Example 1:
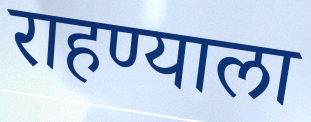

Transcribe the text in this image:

राहण्याला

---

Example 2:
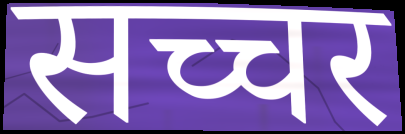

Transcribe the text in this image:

सच्चर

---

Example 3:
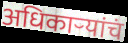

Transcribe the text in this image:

अधिकाऱ्यांचं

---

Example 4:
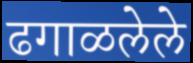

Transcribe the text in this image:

ढगाळलेले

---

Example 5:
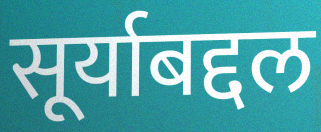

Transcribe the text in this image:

सूर्याबद्दल